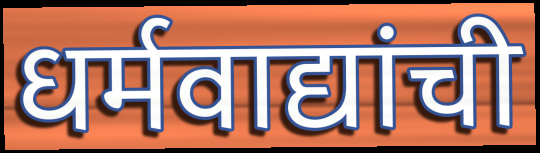
धर्मवाद्यांची